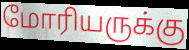
மோரியருக்கு